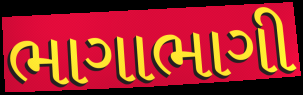
ભાગાભાગી